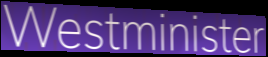
Westminister